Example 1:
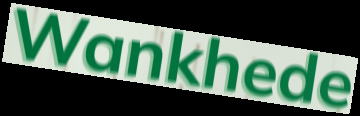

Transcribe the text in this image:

Wankhede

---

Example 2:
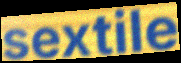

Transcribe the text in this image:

sextile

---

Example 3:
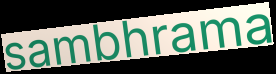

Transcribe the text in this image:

sambhrama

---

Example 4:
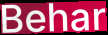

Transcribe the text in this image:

Behar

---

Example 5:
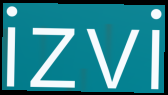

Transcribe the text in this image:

izvi